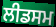
ਲੀਡਸਮ